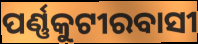
ପର୍ଣ୍ଣକୁଟୀରବାସୀ